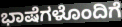
ಭಾಷೆಗಳೊಂದಿಗೆ